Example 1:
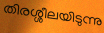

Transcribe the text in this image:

തിരശ്ശീലയിടുന്നു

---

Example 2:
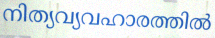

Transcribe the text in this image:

നിത്യവ്യവഹാരത്തിൽ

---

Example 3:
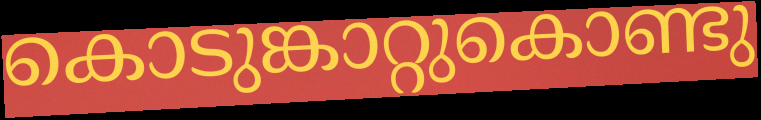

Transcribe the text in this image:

കൊടുങ്കാറ്റുകൊണ്ടു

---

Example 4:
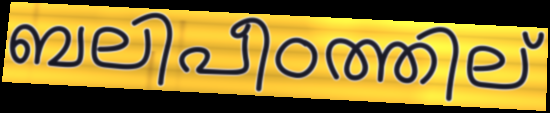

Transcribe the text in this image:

ബലിപീഠത്തില്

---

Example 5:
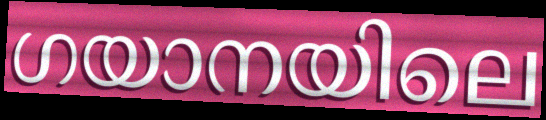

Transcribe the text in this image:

ഗയാനയിലെ